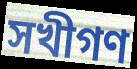
সখীগণ